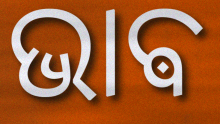
ଭାଵ